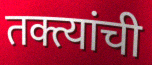
तक्त्यांची